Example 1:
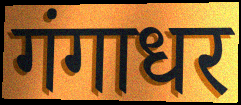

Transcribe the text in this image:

गंगाधर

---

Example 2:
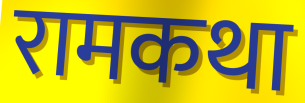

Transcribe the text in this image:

रामकथा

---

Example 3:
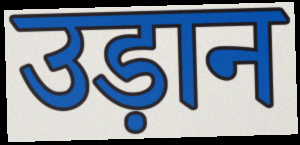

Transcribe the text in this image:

उड़ान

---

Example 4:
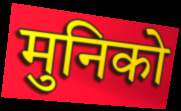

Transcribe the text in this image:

मुनिको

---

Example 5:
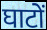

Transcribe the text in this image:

घाटों